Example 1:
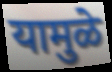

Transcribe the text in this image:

यामुळे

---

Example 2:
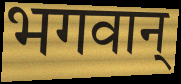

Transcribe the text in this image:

भगवान्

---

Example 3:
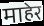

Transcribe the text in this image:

माहेर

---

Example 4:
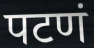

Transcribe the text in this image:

पटणं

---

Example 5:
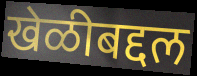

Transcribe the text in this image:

खेळीबद्दल